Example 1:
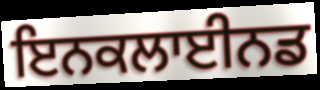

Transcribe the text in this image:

ਇਨਕਲਾਈਨਡ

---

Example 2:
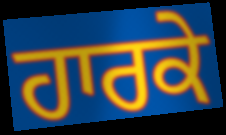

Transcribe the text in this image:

ਹਾਰਕੇ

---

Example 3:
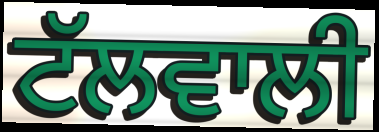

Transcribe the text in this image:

ਟੱਲਵਾਲੀ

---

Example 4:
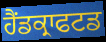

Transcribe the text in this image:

ਹੈਂਡਕ੍ਰਾਫਟਡ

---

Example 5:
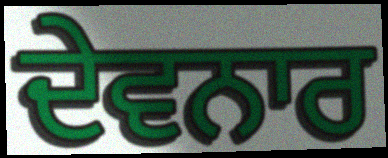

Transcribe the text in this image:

ਦੇਵਨਾਰ